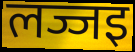
लज्जइ